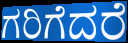
ಗರಿಗೆದರೆ